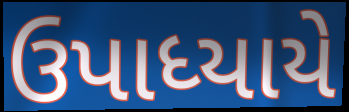
ઉપાધ્યાયે